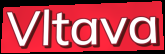
Vltava